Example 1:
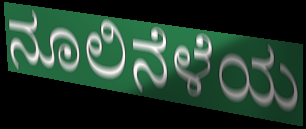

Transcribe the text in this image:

ನೂಲಿನೆಳೆಯ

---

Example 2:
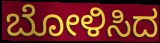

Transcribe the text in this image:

ಬೋಳಿಸಿದ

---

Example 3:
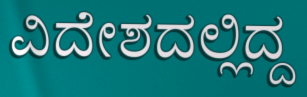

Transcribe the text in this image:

ವಿದೇಶದಲ್ಲಿದ್ದ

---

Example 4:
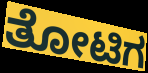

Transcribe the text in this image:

ತೋಟಿಗ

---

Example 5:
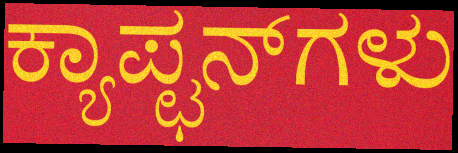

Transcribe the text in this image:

ಕ್ಯಾಪ್ಟನ್‌ಗಳು